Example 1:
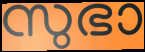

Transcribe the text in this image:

സുഭാ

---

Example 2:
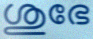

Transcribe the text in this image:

ശുഭേ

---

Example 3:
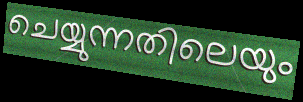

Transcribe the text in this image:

ചെയ്യുന്നതിലെയും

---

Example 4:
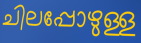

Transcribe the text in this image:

ചിലപ്പോഴുള്ള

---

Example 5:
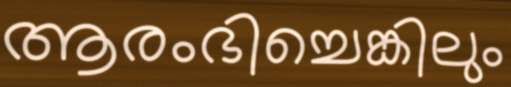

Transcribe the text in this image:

ആരംഭിച്ചെങ്കിലും